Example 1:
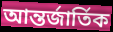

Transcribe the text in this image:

আন্তর্জার্তিক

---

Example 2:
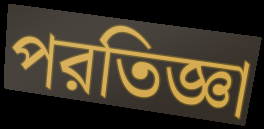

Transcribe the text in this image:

পরতিজ্ঞা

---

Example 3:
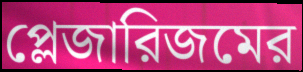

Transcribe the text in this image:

প্লেজারিজমের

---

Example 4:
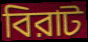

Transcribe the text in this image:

বিরাট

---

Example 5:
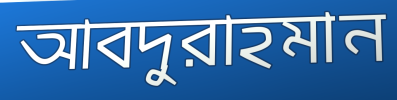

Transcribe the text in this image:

আবদুরাহমান